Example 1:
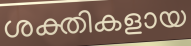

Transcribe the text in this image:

ശക്തികളായ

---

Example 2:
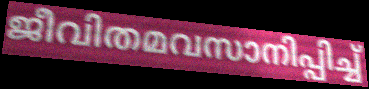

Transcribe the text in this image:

ജീവിതമവസാനിപ്പിച്ച്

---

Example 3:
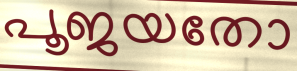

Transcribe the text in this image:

പൂജയതോ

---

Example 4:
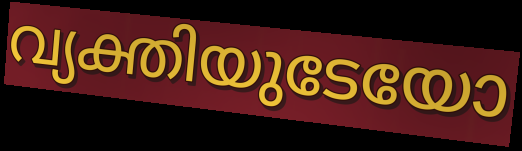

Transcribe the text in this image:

വ്യക്തിയുടേയോ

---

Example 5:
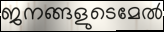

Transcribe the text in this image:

ജനങ്ങളുടെമേൽ